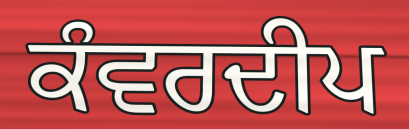
ਕੰਵਰਦੀਪ